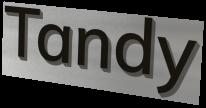
Tandy